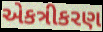
એકત્રીકરણ